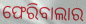
ଫେରିବାଲାର